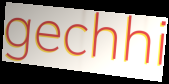
gechhi